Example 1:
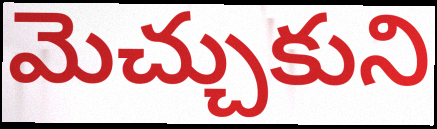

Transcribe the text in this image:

మెచ్చుకుని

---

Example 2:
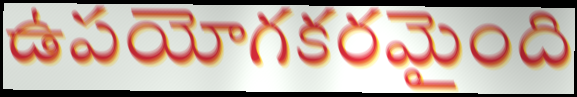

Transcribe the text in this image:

ఉపయోగకరమైంది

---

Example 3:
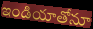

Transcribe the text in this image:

ఇండియాతోనూ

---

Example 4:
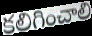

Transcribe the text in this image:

కలిగించాలి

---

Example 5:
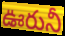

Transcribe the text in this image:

ఊరునీ